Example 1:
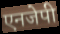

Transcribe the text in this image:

एनजेपी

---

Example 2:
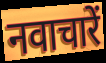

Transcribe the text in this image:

नवाचारें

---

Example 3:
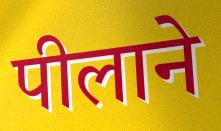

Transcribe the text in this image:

पीलाने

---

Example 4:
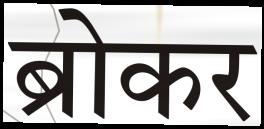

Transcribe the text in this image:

ब्रोकर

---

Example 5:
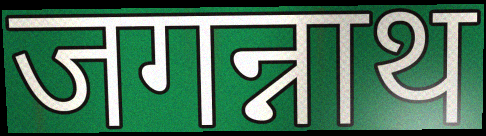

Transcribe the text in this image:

जगन्नाथ